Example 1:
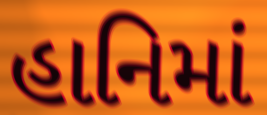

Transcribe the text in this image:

હાનિમાં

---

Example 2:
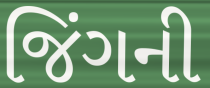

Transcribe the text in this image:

જિંગની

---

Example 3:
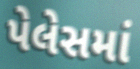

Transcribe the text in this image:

પેલેસમાં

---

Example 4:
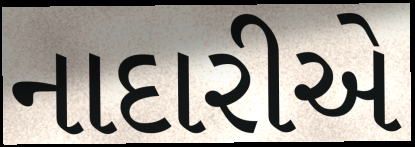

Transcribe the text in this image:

નાદારીએ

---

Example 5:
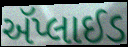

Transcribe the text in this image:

ઍપ્લાઈડ